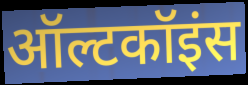
ऑल्टकॉइंस